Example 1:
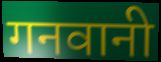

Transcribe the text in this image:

गनवानी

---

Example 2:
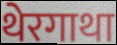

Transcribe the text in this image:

थेरगाथा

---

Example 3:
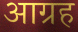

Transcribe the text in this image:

आग्रह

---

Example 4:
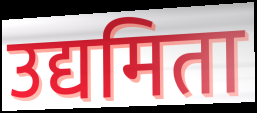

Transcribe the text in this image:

उद्यमिता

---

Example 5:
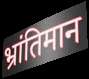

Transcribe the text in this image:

भ्रांतिमान